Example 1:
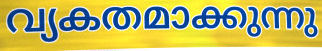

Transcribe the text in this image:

വ്യകതമാക്കുന്നു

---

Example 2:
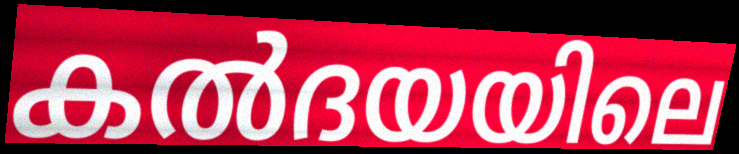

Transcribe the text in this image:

കൽദയയിലെ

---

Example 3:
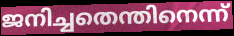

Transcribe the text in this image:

ജനിച്ചതെന്തിനെന്ന്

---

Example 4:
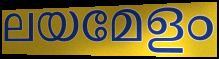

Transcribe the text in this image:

ലയമേളം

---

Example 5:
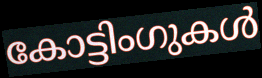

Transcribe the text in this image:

കോട്ടിംഗുകൾ